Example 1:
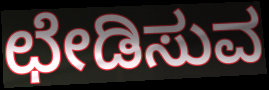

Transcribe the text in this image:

ಛೇಡಿಸುವ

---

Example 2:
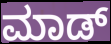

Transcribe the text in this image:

ಮಾಡ್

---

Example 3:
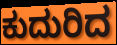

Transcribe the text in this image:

ಕುದುರಿದ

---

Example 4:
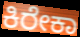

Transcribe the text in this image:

ಕಿರೇಕಾ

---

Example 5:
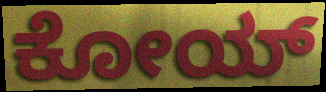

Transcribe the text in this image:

ಕೋಯ್